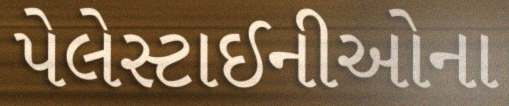
પેલેસ્ટાઈનીઓના